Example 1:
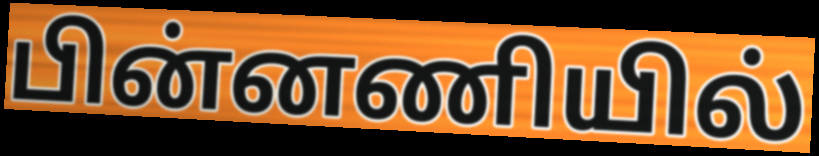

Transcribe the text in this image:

பின்னணியில்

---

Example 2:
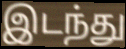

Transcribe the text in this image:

இடந்து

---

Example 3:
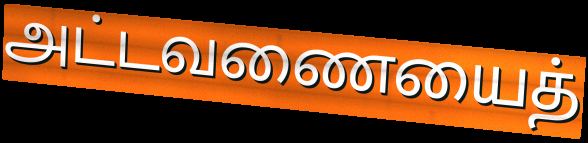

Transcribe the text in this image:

அட்டவணையைத்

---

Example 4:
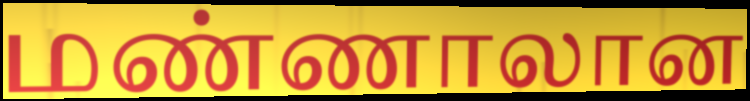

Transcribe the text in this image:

மண்ணாலான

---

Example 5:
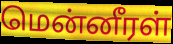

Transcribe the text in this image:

மென்னீரள்